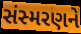
સંસ્મરણને